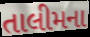
તાલીમના